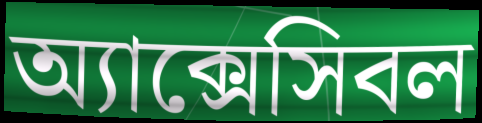
অ্যাক্সেসিবল